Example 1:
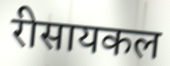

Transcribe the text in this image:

रीसायकल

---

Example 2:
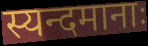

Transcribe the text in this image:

स्यन्दमानाः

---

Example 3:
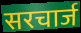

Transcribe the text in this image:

सरचार्ज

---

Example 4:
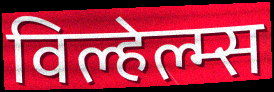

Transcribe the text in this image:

विल्हेल्म्स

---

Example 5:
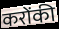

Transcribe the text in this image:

करोंकी